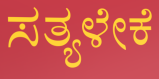
ಸತ್ಯಳೇಕೆ